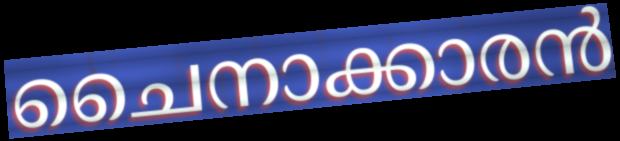
ചൈനാക്കാരൻ